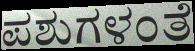
ಪಶುಗಳಂತೆ